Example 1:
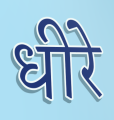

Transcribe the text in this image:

धीरे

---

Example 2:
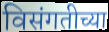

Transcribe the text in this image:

विसंगतीच्या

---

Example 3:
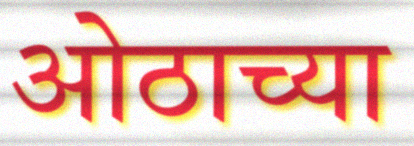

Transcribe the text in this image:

ओठाच्या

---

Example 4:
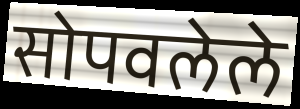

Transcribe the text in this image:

सोपवलेले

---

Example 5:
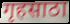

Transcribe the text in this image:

गृहसाठा